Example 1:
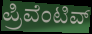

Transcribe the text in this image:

ಪ್ರಿವೆಂಟಿವ್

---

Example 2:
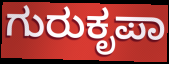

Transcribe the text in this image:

ಗುರುಕೃಪಾ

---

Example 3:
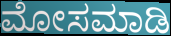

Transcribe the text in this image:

ಮೋಸಮಾಡಿ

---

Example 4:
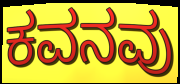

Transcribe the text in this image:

ಕವನವು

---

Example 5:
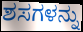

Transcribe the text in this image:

ಶಸಗಳನ್ನು